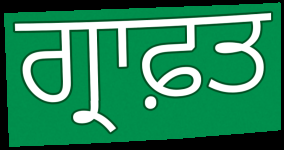
ਗ੍ਰਾਫ਼ਤ